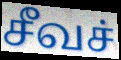
சீவச்